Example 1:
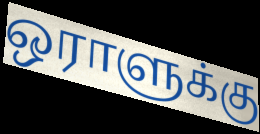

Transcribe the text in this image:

ஒராளுக்கு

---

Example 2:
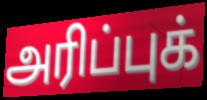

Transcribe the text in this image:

அரிப்புக்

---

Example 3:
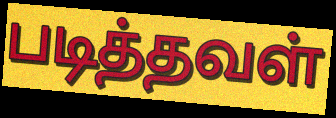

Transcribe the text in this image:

படித்தவள்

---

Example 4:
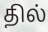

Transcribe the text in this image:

தில்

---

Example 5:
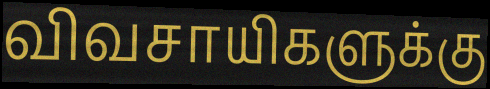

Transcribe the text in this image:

விவசாயிகளுக்கு